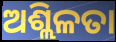
ଅଶ୍ଲିଳତା